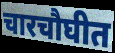
चारचौघीत